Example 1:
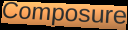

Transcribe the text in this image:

Composure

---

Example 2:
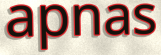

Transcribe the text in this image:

apnas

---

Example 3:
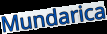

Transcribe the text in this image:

Mundarica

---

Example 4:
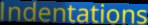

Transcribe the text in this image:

Indentations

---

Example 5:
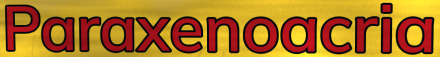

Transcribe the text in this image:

Paraxenoacria